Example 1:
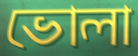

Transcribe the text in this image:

ভোলা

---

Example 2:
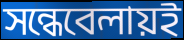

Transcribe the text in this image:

সন্ধেবেলায়ই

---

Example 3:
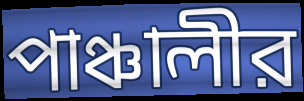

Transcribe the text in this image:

পাঞ্চালীর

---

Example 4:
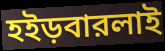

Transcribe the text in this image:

হইড়বারলাই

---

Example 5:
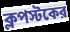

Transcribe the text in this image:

ক্লপস্টকের